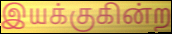
இயக்குகின்ற